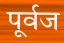
पूर्वज